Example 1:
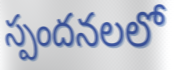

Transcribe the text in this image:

స్పందనలలో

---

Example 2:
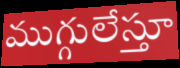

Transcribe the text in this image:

ముగ్గులేస్తూ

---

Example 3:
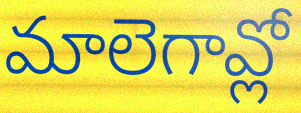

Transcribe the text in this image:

మాలెగావ్లో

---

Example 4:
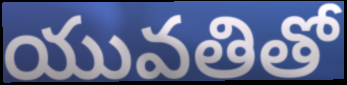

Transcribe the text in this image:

యువతితో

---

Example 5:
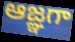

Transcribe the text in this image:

ఆజ్ఞగా